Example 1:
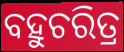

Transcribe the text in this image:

ବହୁଚରିତ୍ର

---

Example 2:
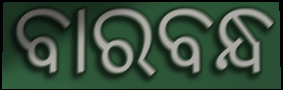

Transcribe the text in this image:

ବାରବନ୍ଧ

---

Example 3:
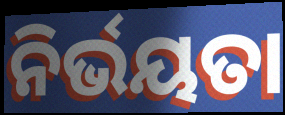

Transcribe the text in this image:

ନିର୍ଭୟତା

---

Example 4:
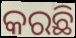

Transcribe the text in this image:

କରଛି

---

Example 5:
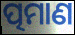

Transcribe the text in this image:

ତ୍ପମାଣ